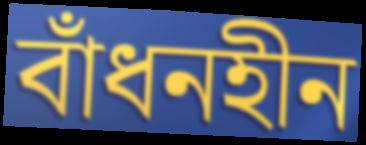
বাঁধনহীন